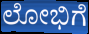
ಲೋಭಿಗೆ